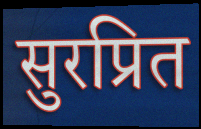
सुरप्रित